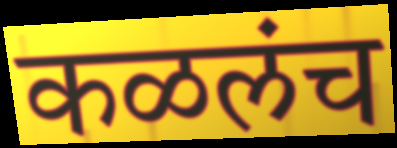
कळलंच